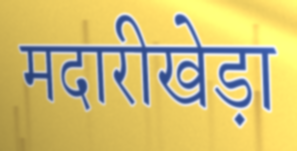
मदारीखेड़ा